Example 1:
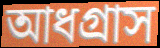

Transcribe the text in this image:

আধগ্রাস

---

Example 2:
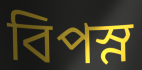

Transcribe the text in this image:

বিপস্ন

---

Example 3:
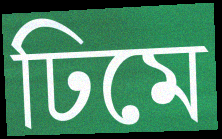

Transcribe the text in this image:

ঢিমে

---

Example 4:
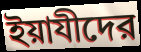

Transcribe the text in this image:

ইয়াযীদের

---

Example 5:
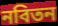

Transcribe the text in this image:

নবিতন